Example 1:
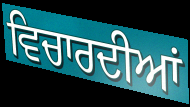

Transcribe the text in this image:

ਵਿਚਾਰਦੀਆਂ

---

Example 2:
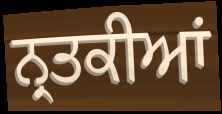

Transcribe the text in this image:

ਨ੍ਰਤਕੀਆਂ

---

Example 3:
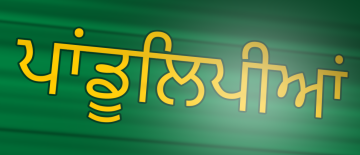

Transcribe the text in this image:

ਪਾਂਡੂਲਿਪੀਆਂ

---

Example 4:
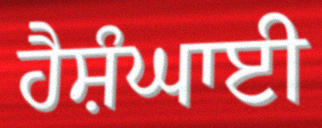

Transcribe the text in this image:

ਹੈਸ਼ੰਘਾਈ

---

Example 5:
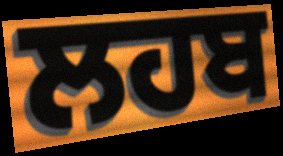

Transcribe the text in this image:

ਲਹਬ